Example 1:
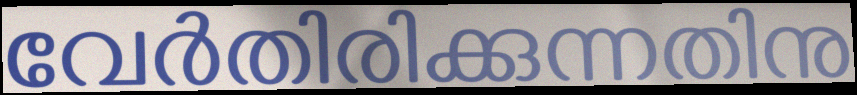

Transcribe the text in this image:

വേർതിരിക്കുന്നതിനു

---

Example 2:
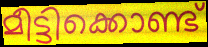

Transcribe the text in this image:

മീട്ടിക്കൊണ്ട്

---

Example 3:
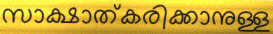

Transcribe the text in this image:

സാക്ഷാത്കരിക്കാനുള്ള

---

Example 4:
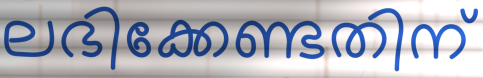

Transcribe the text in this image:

ലഭിക്കേണ്ടതിന്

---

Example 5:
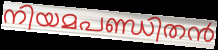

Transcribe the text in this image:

നിയമപണ്ഡിതൻ